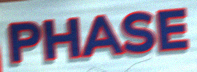
PHASE